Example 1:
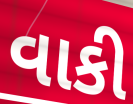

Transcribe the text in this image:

વાકી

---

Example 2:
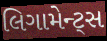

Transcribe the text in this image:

લિગામેન્ટ્સ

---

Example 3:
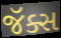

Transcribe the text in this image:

જૅક્સ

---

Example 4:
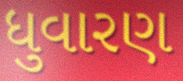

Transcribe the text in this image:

ધુવારણ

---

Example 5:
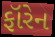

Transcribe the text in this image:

ફૉરેન